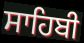
ਸਾਹਿਬੀ